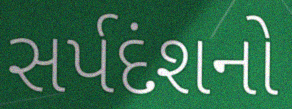
સર્પદંશનો